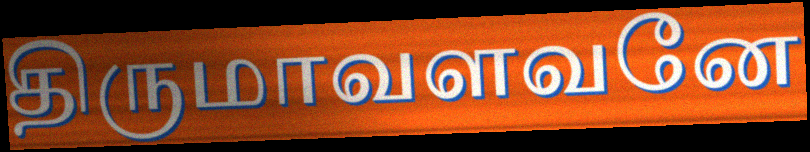
திருமாவளவனே